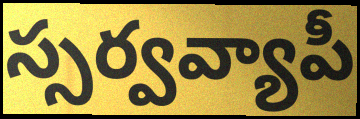
స్సర్వవ్యాపీ